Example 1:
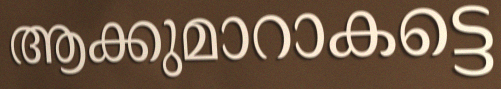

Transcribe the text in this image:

ആക്കുമാറാകട്ടെ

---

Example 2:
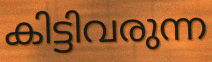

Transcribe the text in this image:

കിട്ടിവരുന്ന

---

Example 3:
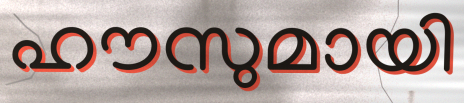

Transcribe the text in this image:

ഹൗസുമായി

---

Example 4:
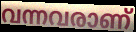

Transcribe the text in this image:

വന്നവരാണ്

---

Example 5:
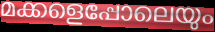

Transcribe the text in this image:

മക്കളെപ്പോലെയും